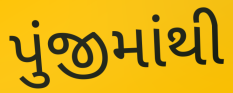
પુંજીમાંથી